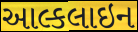
આલ્કલાઇન